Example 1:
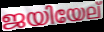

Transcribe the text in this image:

ജയിയേല്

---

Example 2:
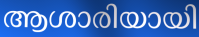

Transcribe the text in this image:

ആശാരിയായി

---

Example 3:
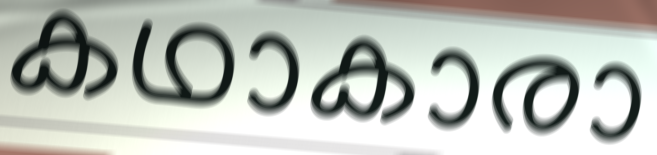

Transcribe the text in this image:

കഥാകാരാ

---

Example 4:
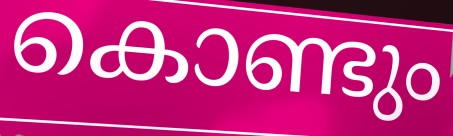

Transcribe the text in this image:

കൊണ്ടും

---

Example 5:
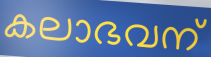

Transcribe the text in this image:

കലാഭവന്